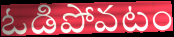
ఓడిపోవటం